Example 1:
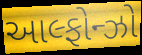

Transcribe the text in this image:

આલ્ફોન્ઝો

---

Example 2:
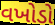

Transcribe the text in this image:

વખોડો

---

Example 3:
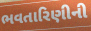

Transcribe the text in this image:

ભવતારિણીની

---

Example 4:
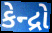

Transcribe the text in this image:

કેન્દ્રો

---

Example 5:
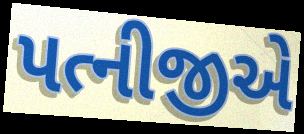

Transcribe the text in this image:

પત્નીજીએ